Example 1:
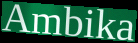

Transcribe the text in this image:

Ambika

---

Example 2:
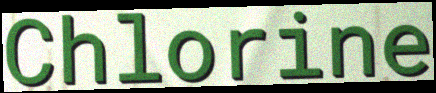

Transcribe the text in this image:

Chlorine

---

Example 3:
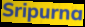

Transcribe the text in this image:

Sripurna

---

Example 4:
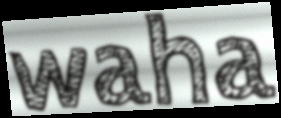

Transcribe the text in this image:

waha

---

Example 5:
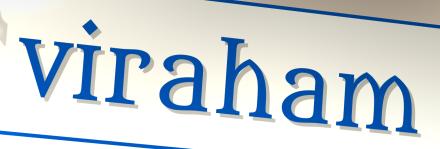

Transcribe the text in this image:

viraham